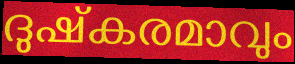
ദുഷ്‌കരമാവും